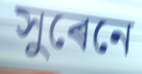
সুৰেনে